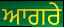
ਆਗਰੇ